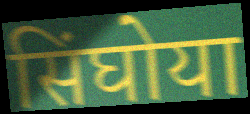
सिंघोया